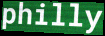
philly